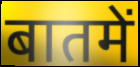
बातमें